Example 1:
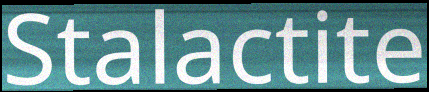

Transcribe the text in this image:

Stalactite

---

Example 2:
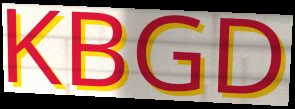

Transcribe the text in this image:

KBGD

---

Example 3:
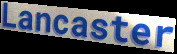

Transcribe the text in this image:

Lancaster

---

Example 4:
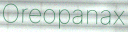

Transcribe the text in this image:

Oreopanax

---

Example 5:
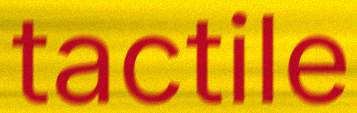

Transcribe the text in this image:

tactile